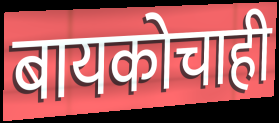
बायकोचाही